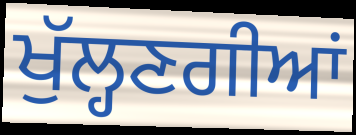
ਖੁੱਲ੍ਹਣਗੀਆਂ